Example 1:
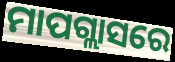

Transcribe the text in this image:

ମାପଗ୍ଲାସରେ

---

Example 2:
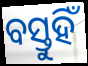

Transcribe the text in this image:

ବସ୍ତୁହିଁ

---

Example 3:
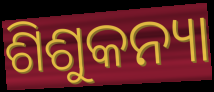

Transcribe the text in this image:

ଶିଶୁକନ୍ୟା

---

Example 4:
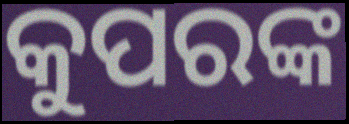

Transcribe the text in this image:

କୁପରଙ୍କ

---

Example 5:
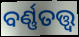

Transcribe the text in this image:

ବର୍ଣ୍ଣତତ୍ତ୍ଵ